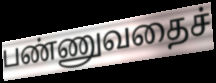
பண்ணுவதைச்